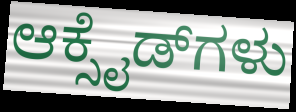
ಆಕ್ಸೈಡ್‌ಗಳು